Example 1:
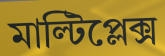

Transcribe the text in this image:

মাল্টিপ্লেক্স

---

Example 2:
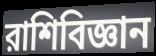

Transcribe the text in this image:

রাশিবিজ্ঞান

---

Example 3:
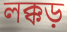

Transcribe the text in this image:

লক্কড়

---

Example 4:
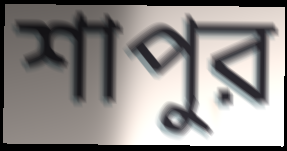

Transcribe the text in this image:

শাপুর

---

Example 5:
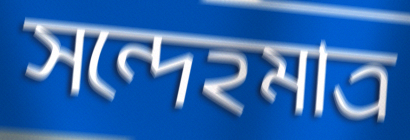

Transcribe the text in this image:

সন্দেহমাত্র